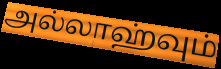
அல்லாஹ்வும்